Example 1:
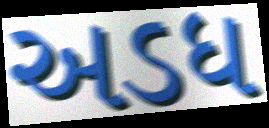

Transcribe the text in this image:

અડધ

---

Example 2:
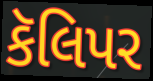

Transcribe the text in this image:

કૅલિપર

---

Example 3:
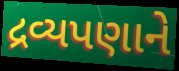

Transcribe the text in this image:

દ્રવ્યપણાને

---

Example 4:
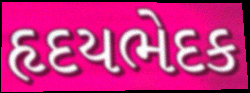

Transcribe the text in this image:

હૃદયભેદક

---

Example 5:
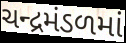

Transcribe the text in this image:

ચન્દ્રમંડળમાં